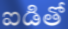
ఐడితో